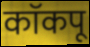
कॉकपू